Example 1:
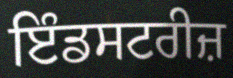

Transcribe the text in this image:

ਇੰਡਸਟਰੀਜ਼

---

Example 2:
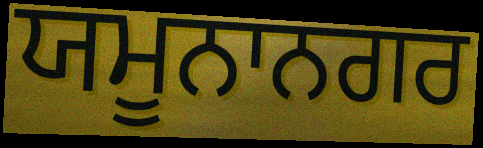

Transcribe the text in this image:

ਯਮੂਨਾਨਗਰ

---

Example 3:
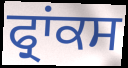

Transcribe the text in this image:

ਫ੍ਰਾਂਕਸ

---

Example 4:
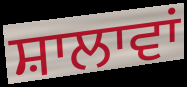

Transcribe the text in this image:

ਸ਼ਾਲਾਵਾਂ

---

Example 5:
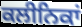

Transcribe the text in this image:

ਕਲੀਨਿਕਾਂ